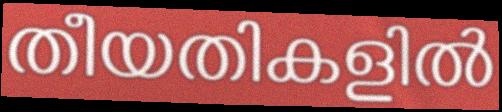
തീയതികളിൽ